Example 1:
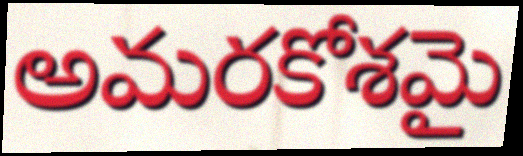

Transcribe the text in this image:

అమరకోశమై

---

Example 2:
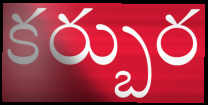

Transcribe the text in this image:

కర్బుర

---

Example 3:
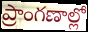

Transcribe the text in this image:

ప్రాంగణాల్లో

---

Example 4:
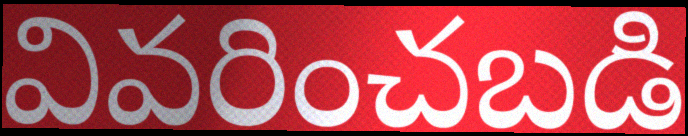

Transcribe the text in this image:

వివరించబడి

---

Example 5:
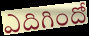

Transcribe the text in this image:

ఎదిగిందో